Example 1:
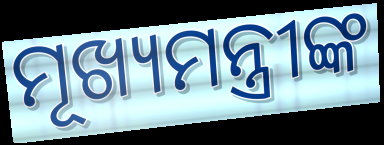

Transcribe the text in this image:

ମୂଖ୍ୟମନ୍ତ୍ରୀଙ୍କ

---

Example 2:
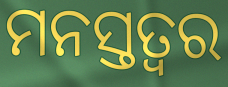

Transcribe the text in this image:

ମନସ୍ତତ୍ଵର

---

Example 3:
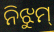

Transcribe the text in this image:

ନିଝୁମ୍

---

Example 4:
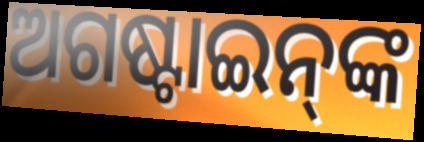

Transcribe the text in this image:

ଅଗଷ୍ଟାଇନ୍‌ଙ୍କ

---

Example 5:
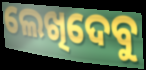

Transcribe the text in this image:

ଲେଖିଦେବୁ